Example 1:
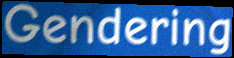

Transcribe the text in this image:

Gendering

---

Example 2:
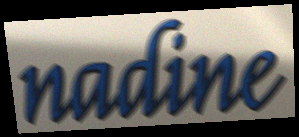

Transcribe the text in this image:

nadine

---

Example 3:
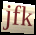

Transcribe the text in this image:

jfk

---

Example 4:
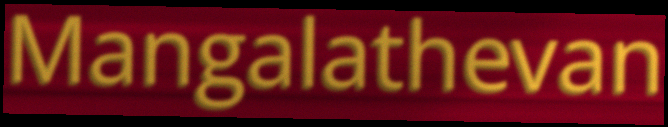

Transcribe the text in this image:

Mangalathevan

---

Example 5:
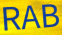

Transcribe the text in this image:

RAB